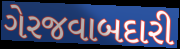
ગેરજવાબદારી